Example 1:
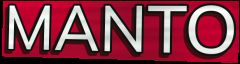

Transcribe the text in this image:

MANTO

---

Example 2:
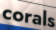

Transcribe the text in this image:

corals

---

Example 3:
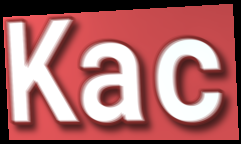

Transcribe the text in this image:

Kac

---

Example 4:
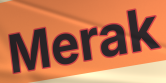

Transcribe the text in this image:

Merak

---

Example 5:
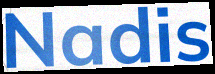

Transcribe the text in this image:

Nadis